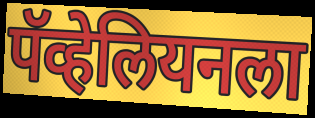
पॅव्हेलियनला